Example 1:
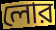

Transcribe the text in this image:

লোর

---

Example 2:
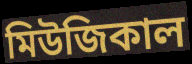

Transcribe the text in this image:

মিউজিকাল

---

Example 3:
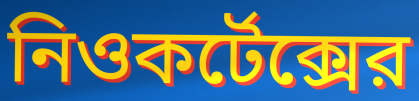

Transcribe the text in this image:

নিওকর্টেক্সের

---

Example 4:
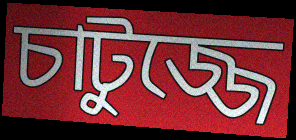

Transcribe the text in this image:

চাটুজ্জে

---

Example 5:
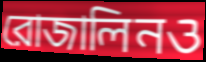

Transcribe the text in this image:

রোজালিনও